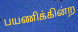
பயணிக்கின்ற